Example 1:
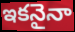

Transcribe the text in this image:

ఇకనైనా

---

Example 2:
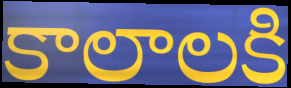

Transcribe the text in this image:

కాలాలకి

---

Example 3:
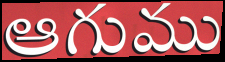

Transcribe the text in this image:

ఆగుము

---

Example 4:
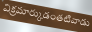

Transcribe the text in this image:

విక్రమార్కుడంతటివాడు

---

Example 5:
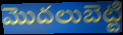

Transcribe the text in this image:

మొదలుబెట్టి